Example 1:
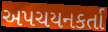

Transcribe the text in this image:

અપચયનકર્તા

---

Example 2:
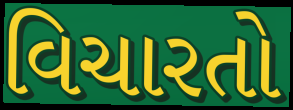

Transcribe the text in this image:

વિચારતો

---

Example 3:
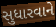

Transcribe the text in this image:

સુધારવાને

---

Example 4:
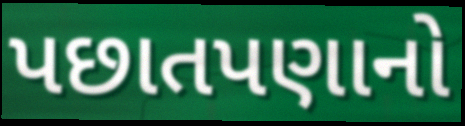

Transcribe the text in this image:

પછાતપણાનો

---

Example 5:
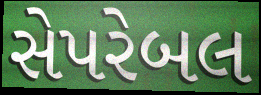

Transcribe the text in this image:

સેપરેબલ